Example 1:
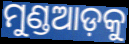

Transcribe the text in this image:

ମୁଣ୍ଡଆଡ଼କୁ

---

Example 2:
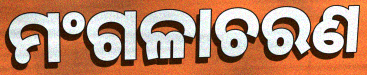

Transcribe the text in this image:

ମଂଗଳାଚରଣ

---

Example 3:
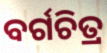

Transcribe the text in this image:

ବର୍ଗଚିତ୍ର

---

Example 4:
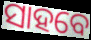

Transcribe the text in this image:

ସାହବେ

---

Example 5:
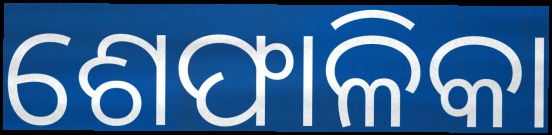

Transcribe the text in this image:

ଶେଫାଳିକା